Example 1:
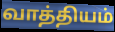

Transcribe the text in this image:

வாத்தியம்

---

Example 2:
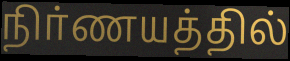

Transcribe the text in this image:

நிர்ணயத்தில்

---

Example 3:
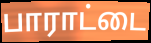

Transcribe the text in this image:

பாராட்டை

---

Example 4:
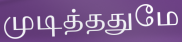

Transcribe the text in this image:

முடித்ததுமே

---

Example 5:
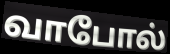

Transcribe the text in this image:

வாபோல்